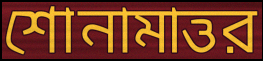
শোনামাত্তর